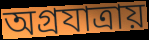
অগ্রযাত্রায়